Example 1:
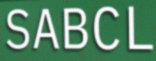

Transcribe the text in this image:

SABCL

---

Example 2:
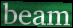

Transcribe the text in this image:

beam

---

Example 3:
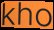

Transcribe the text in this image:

kho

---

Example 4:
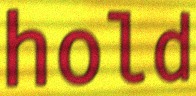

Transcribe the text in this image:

hold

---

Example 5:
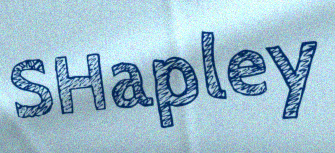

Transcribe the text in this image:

SHapley